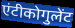
एंटीकोगुलेंट